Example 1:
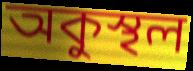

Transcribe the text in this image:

অকুস্থল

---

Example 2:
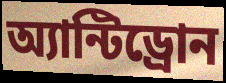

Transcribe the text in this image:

অ্যান্টিড্রোন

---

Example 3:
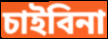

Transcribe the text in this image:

চাইবিনা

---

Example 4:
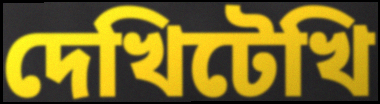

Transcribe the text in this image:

দেখিটেখি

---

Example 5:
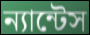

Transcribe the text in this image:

ন্যান্টেস